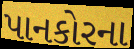
પાનકોરના